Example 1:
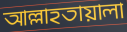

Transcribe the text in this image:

আল্লাহতায়ালা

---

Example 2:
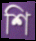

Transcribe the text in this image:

শি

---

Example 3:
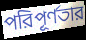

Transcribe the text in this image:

পরিপূর্ণতার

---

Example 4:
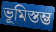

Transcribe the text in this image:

ভূমিস্তম্ভ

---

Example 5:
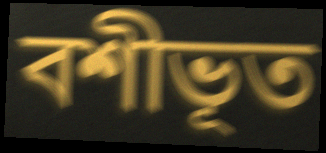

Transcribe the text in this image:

বশীভূত